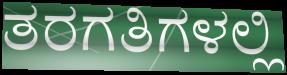
ತರಗತಿಗಳಲ್ಲಿ